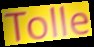
Tolle